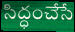
సిద్ధంచేసే